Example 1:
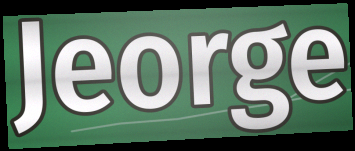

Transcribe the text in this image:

Jeorge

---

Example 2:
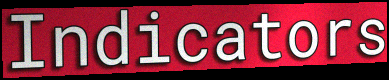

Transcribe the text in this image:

Indicators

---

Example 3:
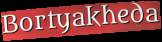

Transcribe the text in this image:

Bortyakheda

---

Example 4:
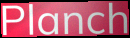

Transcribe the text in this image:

Planch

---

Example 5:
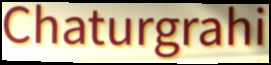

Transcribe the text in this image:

Chaturgrahi